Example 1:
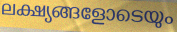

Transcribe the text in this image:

ലക്ഷ്യങ്ങളോടെയും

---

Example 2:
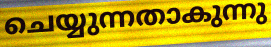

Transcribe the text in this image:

ചെയ്യുന്നതാകുന്നു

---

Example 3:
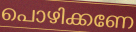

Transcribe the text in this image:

പൊഴിക്കണേ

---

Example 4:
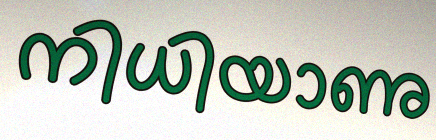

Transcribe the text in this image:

നിധിയാണു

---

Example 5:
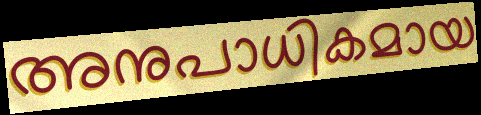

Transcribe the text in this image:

അനുപാധികമായ